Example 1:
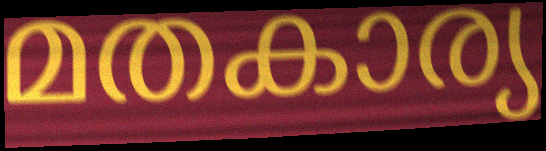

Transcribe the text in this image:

മതകാര്യ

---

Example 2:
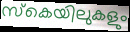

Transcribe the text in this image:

സ്കെയിലുകളും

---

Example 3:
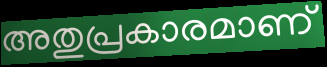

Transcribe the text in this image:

അതുപ്രകാരമാണ്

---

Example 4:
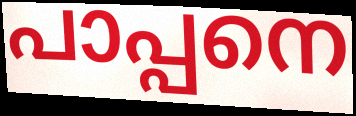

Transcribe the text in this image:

പാപ്പനെ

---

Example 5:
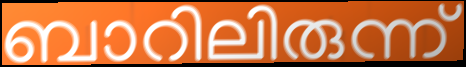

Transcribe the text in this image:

ബാറിലിരുന്ന്